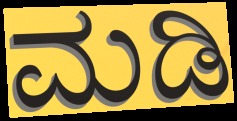
ಮಡಿ